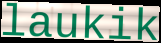
laukik